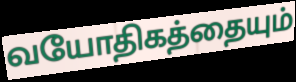
வயோதிகத்தையும்